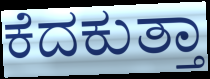
ಕೆದಕುತ್ತಾ